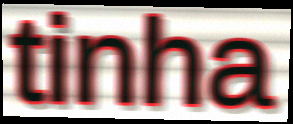
tinha